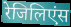
रेजिलिएंस